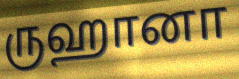
ருஹானா